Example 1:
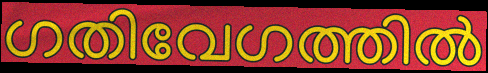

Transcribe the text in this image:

ഗതിവേഗത്തിൽ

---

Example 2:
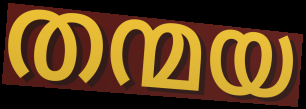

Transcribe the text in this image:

തന്മയ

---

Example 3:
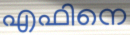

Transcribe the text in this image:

എഫിനെ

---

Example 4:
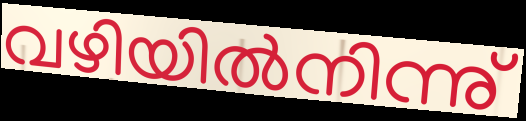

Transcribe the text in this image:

വഴിയിൽനിന്നു്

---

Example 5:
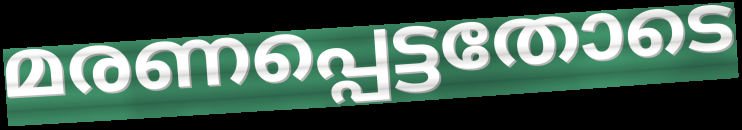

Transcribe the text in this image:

മരണപ്പെട്ടതോടെ